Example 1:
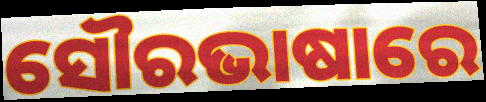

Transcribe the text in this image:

ସୌରଭାଷାରେ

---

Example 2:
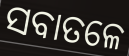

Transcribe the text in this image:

ସବାତଳେ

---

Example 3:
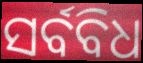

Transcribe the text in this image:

ସର୍ବବିଧ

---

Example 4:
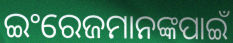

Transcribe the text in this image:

ଇଂରେଜମାନଙ୍କପାଇଁ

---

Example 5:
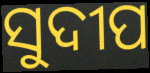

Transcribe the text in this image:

ସୁଦୀପ